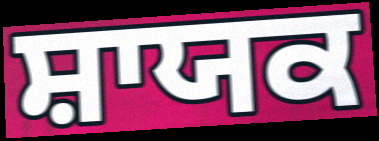
ਸ਼ਾਯਕ